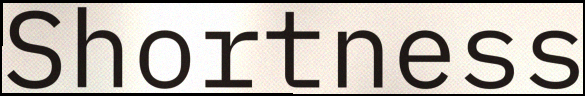
Shortness